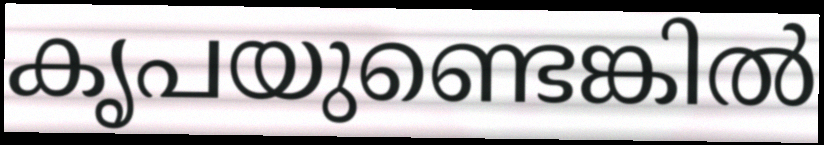
കൃപയുണ്ടെങ്കിൽ